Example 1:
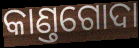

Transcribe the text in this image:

କାଣ୍ତଗୋଦା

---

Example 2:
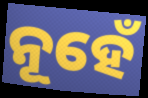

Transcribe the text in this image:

ନୂହେଁ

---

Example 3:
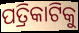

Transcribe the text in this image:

ପତ୍ରିକାଟିକୁ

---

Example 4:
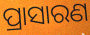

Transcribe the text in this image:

ପ୍ରାସାରଣ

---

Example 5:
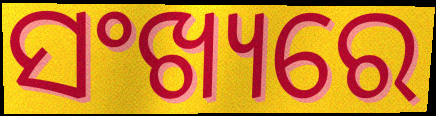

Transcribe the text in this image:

ସଂଖ୍ୟରେ